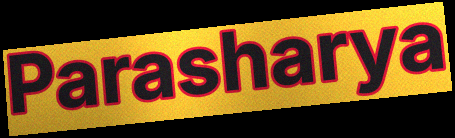
Parasharya